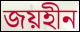
জয়হীন